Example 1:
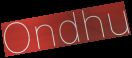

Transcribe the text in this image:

Ondhu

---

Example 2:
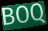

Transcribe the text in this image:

BOQ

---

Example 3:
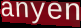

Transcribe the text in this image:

anyen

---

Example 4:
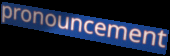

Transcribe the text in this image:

pronouncement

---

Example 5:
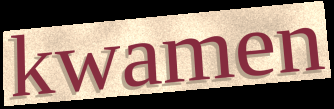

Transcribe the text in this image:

kwamen